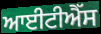
ਆਈਟੀਐੱਸ